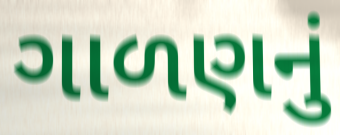
ગાળણનું